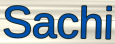
Sachi